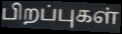
பிறப்புகள்